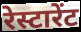
रेस्टारेंट